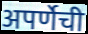
अपर्णेची